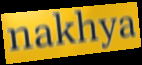
nakhya